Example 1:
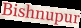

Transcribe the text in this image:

Bishnupur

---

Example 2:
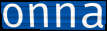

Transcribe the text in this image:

onna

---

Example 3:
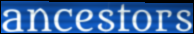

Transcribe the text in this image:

ancestors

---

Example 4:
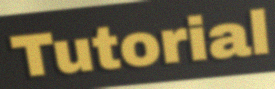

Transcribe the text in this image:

Tutorial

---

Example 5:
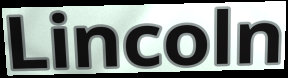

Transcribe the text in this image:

Lincoln